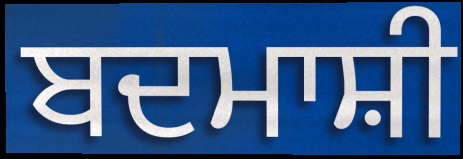
ਬਦਮਾਸ਼ੀ